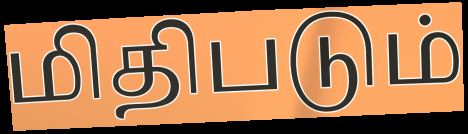
மிதிபடும்